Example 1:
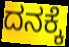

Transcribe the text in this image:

ದನಕ್ಕೆ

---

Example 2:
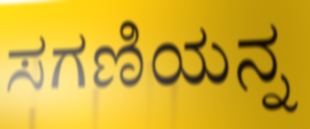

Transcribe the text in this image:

ಸಗಣಿಯನ್ನ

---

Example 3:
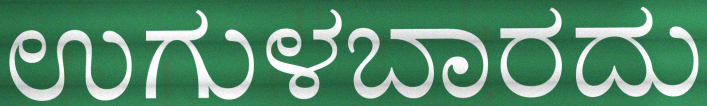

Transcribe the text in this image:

ಉಗುಳಬಾರದು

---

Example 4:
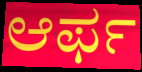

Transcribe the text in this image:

ಆರ್ಫ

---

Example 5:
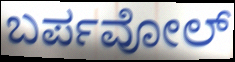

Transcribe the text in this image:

ಬರ್ಪವೋಲ್